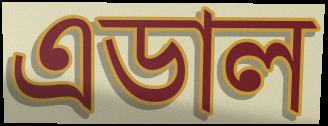
এডাল